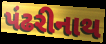
પંઢરીનાથ